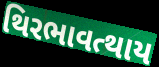
થિરભાવત્થાય